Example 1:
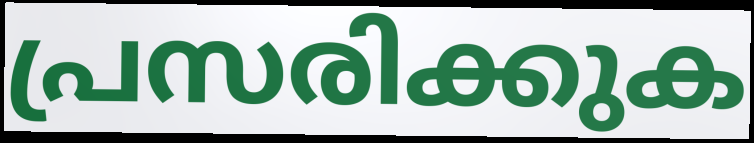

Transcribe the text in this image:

പ്രസരിക്കുക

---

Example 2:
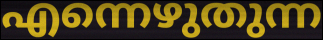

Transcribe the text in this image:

എന്നെഴുതുന്ന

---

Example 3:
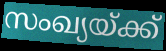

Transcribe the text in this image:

സംഖ്യയ്ക്ക്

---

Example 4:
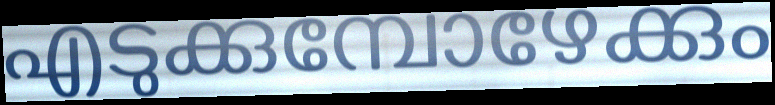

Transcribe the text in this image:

എടുക്കുമ്പോഴേക്കും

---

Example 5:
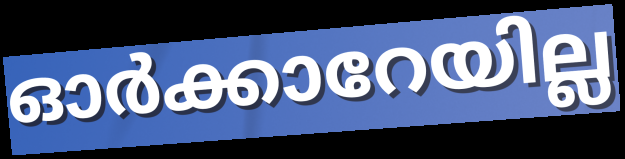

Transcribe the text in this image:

ഓർക്കാറേയില്ല